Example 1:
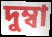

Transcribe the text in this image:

দুম্বা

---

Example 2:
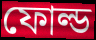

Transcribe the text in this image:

ফোল্ড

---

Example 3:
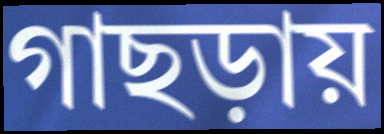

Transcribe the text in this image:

গাছড়ায়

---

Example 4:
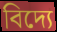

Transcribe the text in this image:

বিদ্যে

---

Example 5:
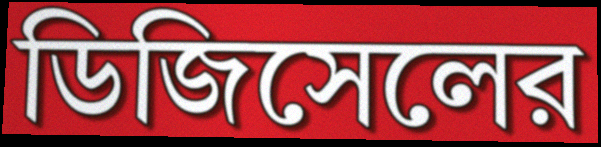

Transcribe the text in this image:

ডিজিসেলের